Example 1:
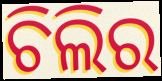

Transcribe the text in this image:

ଚିଲିର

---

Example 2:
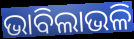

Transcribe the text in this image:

ଭାବିଲାଭଳି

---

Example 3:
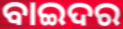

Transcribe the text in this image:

ବାଇଦର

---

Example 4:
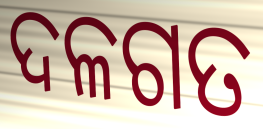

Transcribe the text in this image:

ଦଳଗତ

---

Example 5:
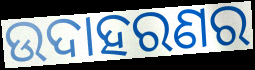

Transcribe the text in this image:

ଉଦାହରଣର